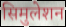
सिमुलेशन